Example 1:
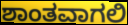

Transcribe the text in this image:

ಶಾಂತವಾಗಲಿ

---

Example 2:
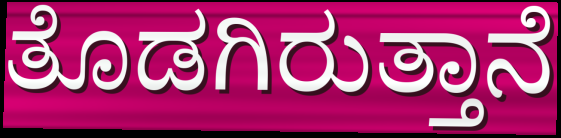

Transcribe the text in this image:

ತೊಡಗಿರುತ್ತಾನೆ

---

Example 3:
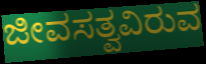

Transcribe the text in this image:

ಜೀವಸತ್ವವಿರುವ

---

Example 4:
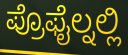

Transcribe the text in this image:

ಪ್ರೊಫೈಲ್ನಲ್ಲಿ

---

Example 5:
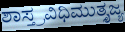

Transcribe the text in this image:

ಶಾಸ್ತ್ರವಿಧಿಮುತ್ಸೃಜ್ಯ